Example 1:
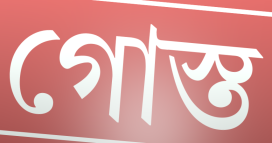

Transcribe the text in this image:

গোস্ত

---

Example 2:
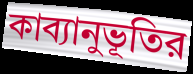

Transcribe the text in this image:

কাব্যানুভূতির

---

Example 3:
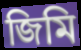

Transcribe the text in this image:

জিমি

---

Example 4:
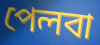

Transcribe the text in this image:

পেলবা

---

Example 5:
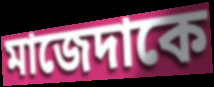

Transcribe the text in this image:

মাজেদাকে